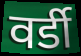
वर्डी